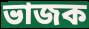
ভাজক